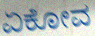
ಏಕೋವ